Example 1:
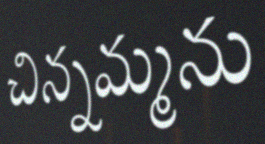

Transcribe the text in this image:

చిన్నమ్మను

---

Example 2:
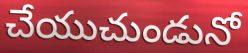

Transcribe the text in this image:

చేయుచుండునో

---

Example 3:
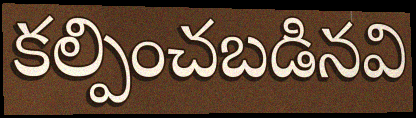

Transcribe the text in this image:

కల్పించబడినవి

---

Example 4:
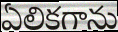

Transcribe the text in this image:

ఏలికగాను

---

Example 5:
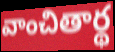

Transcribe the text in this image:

వాంచితార్థ